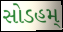
સોડહમ્